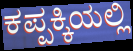
ಕಪ್ಪಕ್ಕಿಯಲ್ಲಿ